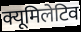
क्यूमिलेटिव